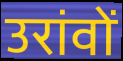
उरांवों